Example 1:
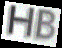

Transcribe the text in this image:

HB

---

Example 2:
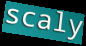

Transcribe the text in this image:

scaly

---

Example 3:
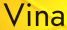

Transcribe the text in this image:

Vina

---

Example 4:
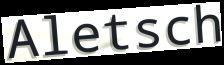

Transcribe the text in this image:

Aletsch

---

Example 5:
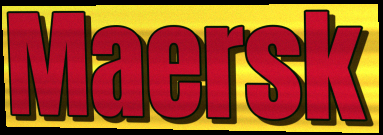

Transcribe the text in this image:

Maersk